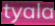
tyala